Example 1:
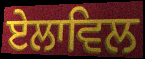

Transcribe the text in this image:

ਏਲਾਵਿਲ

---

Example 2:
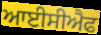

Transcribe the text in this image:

ਆਈਸੀਐਫ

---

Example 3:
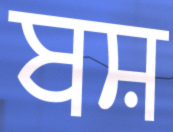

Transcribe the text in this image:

ਬਸ਼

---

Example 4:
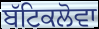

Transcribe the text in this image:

ਬੱਟਿਕਲੋਵਾ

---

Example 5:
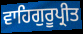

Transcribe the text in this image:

ਵਾਹਿਗੁਰੂਪ੍ਰੀਤ